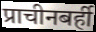
प्राचीनबर्ही